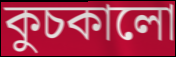
কুচকালো